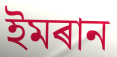
ইমৰান